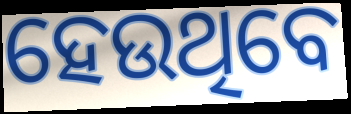
ହେଉଥିବେ